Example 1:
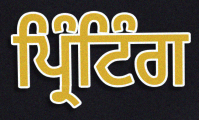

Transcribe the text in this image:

ਪ੍ਰਿੰਟਿੰਗ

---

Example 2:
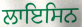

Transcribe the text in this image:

ਲਾਇਸਿਨ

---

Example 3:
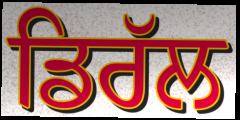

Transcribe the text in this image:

ਡਿਰੱਲ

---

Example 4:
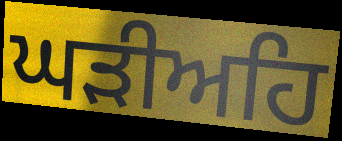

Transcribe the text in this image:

ਘੜੀਅਹਿ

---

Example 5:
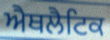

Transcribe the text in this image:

ਐਥਲੈਟਿਕ